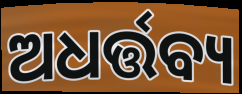
ଅଧର୍ତ୍ତବ୍ୟ